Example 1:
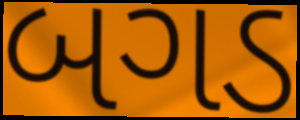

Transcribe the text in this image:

બગડ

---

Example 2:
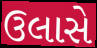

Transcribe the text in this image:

ઉલાસે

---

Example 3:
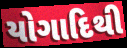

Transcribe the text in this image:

યોગાદિથી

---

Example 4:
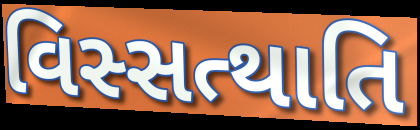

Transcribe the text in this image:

વિસ્સત્થાતિ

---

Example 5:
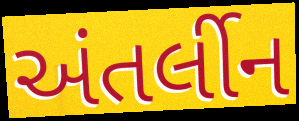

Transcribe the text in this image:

અંતર્લીન